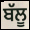
ਬੱਲੂ